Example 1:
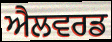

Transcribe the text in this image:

ਐਲਵਰਡ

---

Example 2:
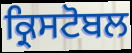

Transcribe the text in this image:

ਕ੍ਰਿਸਟੋਬਲ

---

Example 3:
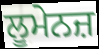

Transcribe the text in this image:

ਲੂਮੇਨਜ਼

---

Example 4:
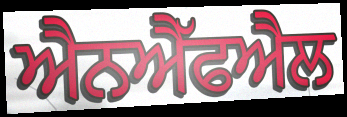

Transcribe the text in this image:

ਐਨਐੱਫਐਲ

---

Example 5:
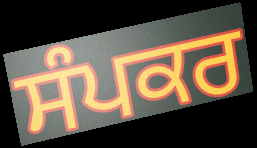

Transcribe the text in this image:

ਸੰਪਕਰ